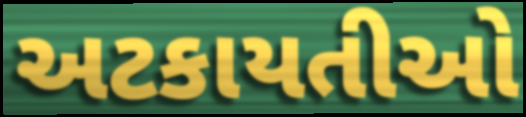
અટકાયતીઓ